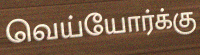
வெய்யோர்க்கு